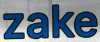
zake